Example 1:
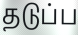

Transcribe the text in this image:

தடுப்ப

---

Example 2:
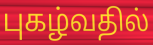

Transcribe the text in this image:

புகழ்வதில்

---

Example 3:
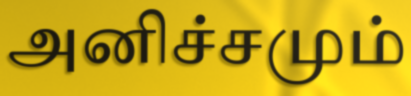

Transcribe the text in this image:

அனிச்சமும்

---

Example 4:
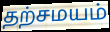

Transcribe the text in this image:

தற்சமயம்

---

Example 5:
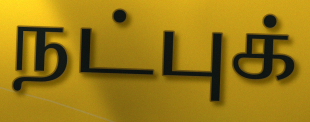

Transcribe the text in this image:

நட்புக்